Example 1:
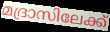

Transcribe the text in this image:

മദ്രാസിലേക്ക്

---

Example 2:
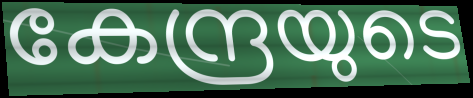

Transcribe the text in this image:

കേന്ദ്രയുടെ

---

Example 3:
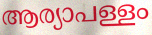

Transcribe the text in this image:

ആര്യാപള്ളം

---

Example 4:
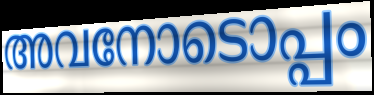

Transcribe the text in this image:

അവനോടൊപ്പം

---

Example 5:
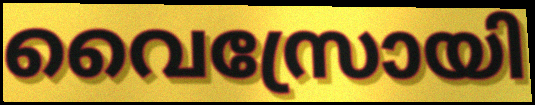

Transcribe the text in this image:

വൈസ്രോയി